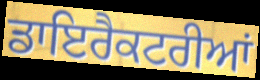
ਡਾਇਰੈਕਟਰੀਆਂ